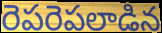
రెపరెపలాడిన